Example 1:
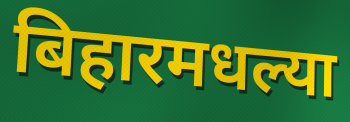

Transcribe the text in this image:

बिहारमधल्या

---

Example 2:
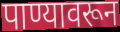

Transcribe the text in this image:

पाण्यावरून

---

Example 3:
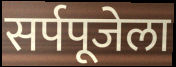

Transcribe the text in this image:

सर्पपूजेला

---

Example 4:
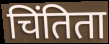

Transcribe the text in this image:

चिंतिता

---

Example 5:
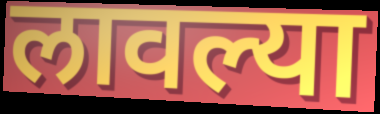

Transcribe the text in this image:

लावल्या